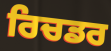
ਰਿਚਡਰ